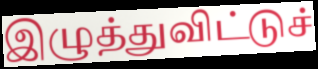
இழுத்துவிட்டுச்